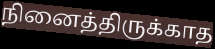
நினைத்திருக்காத